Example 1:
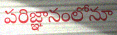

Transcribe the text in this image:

పరిజ్ఞానంలోనూ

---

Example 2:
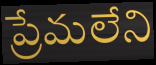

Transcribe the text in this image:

ప్రేమలేని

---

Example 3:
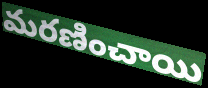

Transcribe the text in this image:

మరణించాయి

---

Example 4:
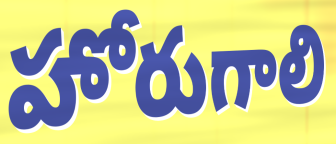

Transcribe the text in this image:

హోరుగాలి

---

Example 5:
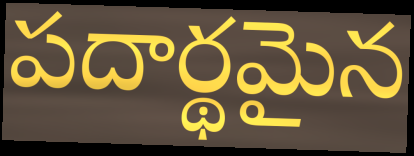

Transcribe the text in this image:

పదార్థమైన